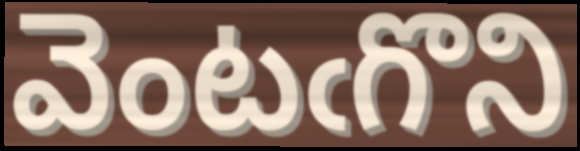
వెంటఁగొని